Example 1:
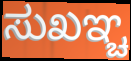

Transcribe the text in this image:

ಸುಖಞ್ಚ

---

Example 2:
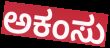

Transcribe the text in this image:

ಅಕಂಸು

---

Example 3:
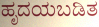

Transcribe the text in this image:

ಹೃದಯಬಡಿತ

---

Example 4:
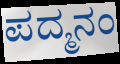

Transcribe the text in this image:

ಪದ್ಮನಂ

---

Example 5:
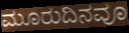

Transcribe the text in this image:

ಮೂರುದಿನವೂ